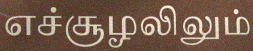
எச்சூழலிலும்